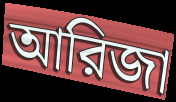
আরিজা